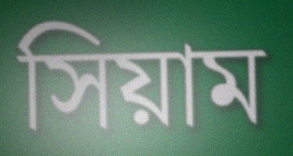
সিয়াম